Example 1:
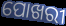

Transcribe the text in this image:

ପୋଖରୀ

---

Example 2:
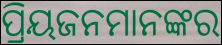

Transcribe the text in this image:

ପ୍ରିୟଜନମାନଙ୍କର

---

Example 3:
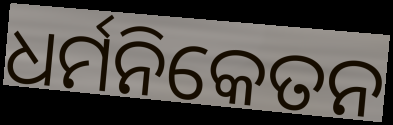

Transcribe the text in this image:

ଧର୍ମନିକେତନ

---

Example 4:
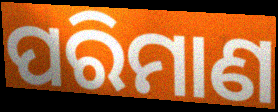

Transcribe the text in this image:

ପରିମାଣ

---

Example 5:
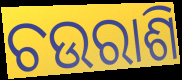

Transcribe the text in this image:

ଚଉରାଶି